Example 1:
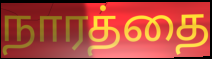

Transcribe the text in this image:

நாரத்தை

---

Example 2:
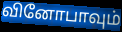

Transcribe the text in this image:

வினோபாவும்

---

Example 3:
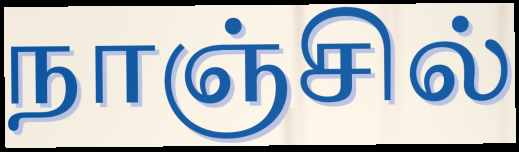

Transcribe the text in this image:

நாஞ்சில்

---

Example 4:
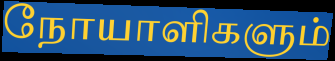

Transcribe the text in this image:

நோயாளிகளும்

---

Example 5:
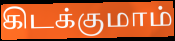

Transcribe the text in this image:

கிடக்குமாம்